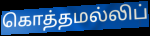
கொத்தமல்லிப்